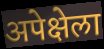
अपेक्षेला